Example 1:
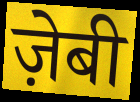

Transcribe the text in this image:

ज़ेबी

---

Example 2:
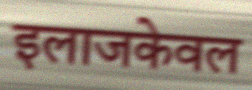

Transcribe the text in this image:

इलाजकेवल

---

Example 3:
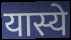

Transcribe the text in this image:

यास्ये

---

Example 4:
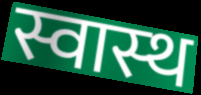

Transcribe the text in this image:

स्‍वास्‍थ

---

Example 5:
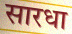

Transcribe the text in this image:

सारधा